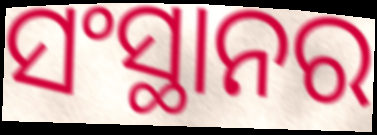
ସଂସ୍ଥାନର